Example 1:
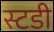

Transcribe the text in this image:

स्टडी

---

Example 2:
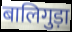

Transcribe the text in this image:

बालिगुड़ा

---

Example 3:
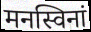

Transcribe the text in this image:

मनस्विनां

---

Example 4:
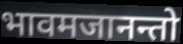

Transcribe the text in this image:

भावमजानन्तो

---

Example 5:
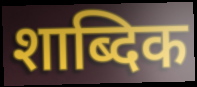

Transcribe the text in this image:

शाब्दिक